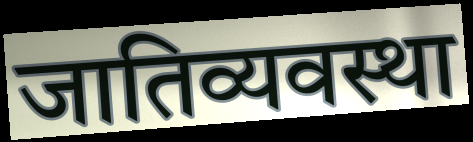
जातिव्यवस्था